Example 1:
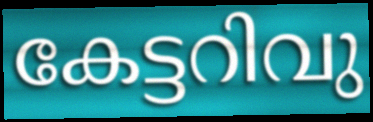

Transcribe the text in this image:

കേട്ടറിവു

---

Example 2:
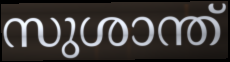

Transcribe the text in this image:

സുശാന്ത്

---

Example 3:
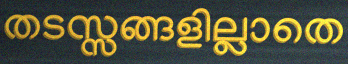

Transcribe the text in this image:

തടസ്സങ്ങളില്ലാതെ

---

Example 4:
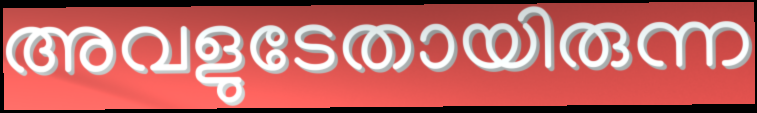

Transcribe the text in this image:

അവളുടേതായിരുന്ന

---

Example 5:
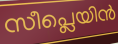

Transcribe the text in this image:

സീപ്ലെയിൻ